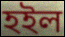
হইল